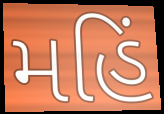
મહિં